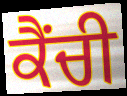
ਕੈਂਚੀ